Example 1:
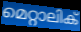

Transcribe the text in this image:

മെറ്റാലിക്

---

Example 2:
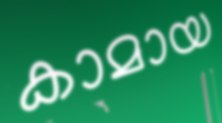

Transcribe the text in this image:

കാമായ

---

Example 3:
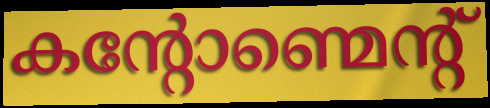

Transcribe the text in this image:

കന്റോണ്മെന്റ്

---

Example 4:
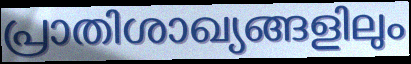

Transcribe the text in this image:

പ്രാതിശാഖ്യങ്ങളിലും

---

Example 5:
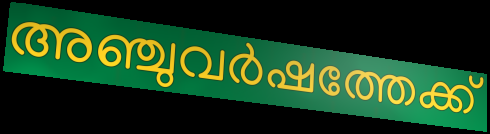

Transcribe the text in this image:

അഞ്ചുവർഷത്തേക്ക്